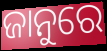
ଜାନୁରେ